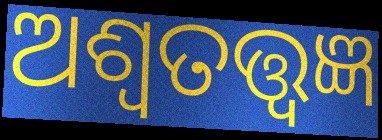
ଅଶ୍ୱତତ୍ତ୍ୱଜ୍ଞ